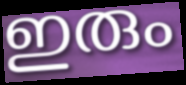
ഇരും